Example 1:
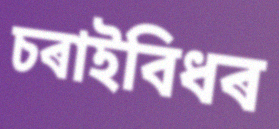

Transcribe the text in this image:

চৰাইবিধৰ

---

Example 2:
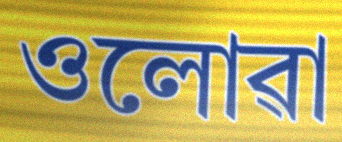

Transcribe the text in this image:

ওলোৱা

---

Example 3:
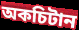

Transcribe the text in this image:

অকচিটান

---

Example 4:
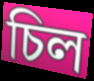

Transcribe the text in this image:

চিল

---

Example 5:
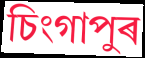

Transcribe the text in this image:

চিংগাপুৰ